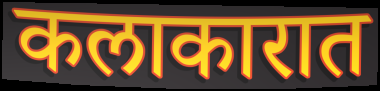
कलाकारात